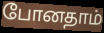
போனதாம்